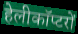
हेलीकॉप्टरों